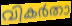
വികർതാ